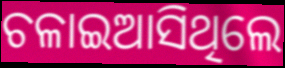
ଚଳାଇଆସିଥିଲେ